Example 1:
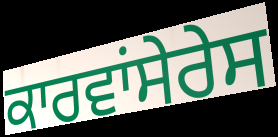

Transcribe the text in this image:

ਕਾਰਵਾਂਸੇਰੇਸ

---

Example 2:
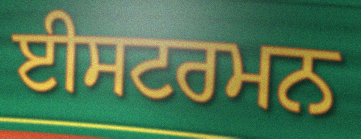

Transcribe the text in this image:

ਈਸਟਰਮਨ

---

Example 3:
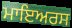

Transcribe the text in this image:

ਮਾਇਅਰਸ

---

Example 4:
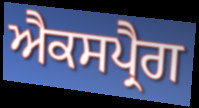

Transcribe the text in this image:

ਐਕਸਪ੍ਰੈਗ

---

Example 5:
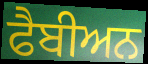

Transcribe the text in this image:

ਫੈਬੀਅਨ